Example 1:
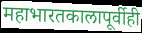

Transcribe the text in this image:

महाभारतकालापूर्वीही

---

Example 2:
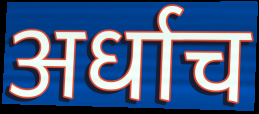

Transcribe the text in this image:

अर्धाच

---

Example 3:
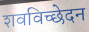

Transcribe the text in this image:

शवविच्छेदन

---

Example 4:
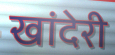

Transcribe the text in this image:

खांदेरी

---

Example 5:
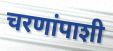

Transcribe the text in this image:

चरणांपाशी